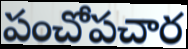
పంచోపచార